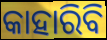
କାହାରିବି